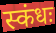
स्कंधः